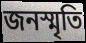
জনস্মৃতি